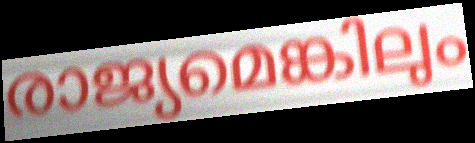
രാജ്യമെങ്കിലും